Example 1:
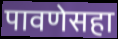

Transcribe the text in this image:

पावणेसहा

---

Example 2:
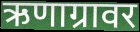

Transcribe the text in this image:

ऋणाग्रावर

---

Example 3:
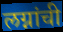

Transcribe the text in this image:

लग्नांची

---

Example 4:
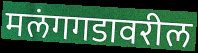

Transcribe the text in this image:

मलंगगडावरील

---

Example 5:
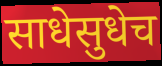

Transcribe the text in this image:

साधेसुधेच